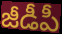
జీడీపీ